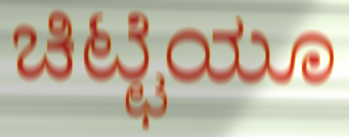
ಚಿಟ್ಟೆಯೂ